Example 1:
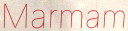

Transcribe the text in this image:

Marmam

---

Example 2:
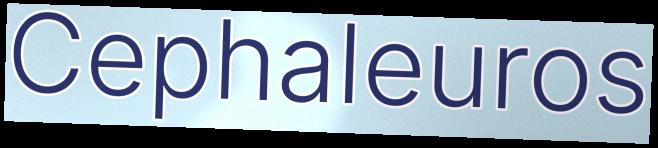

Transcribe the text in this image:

Cephaleuros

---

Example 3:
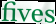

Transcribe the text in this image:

fives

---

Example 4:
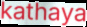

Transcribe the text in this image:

kathaya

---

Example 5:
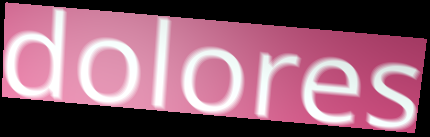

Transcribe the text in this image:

dolores